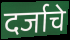
दर्जाचे